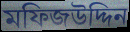
মফিজউদ্দিন